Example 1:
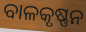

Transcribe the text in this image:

ବାଳକୃଷ୍ଣନ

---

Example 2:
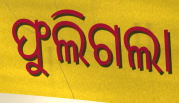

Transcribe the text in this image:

ଫୁଲିଗଲା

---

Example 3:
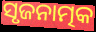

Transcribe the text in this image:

ସୃଜନାତ୍ମକ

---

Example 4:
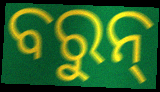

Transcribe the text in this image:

ବରୁନ୍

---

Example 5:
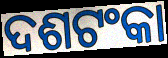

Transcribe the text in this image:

ଦଶଟଂକା